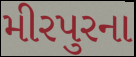
મીરપુરના